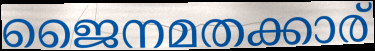
ജൈനമതക്കാര്